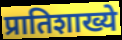
प्रातिशाख्ये